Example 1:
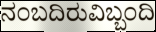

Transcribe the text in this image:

ನಂಬದಿರುವಿಬ್ಬಂದಿ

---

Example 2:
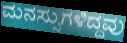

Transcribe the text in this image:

ಮನಸ್ಸುಗಳಿದ್ದವು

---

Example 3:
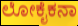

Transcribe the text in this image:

ಲೋಕೈಕನಾ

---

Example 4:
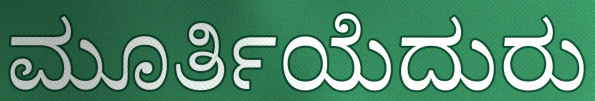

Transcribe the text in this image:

ಮೂರ್ತಿಯೆದುರು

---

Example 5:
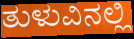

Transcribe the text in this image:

ತುಳುವಿನಲ್ಲಿ